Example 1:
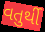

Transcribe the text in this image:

વતુર્થી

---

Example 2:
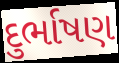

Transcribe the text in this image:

દુર્ભાષણ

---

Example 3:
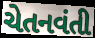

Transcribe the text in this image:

ચેતનવંતી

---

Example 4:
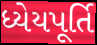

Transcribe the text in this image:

ધ્યેયપૂર્તિ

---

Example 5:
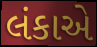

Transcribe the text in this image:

લંકાએ